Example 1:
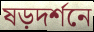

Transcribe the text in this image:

ষড়দর্শনে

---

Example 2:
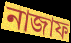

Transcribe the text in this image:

নাজাফ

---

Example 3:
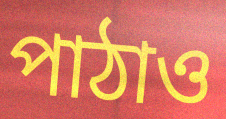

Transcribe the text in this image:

পাঠাও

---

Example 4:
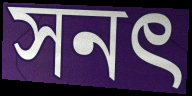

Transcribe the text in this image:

সনৎ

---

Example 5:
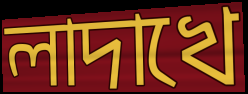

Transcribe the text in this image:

লাদাখে